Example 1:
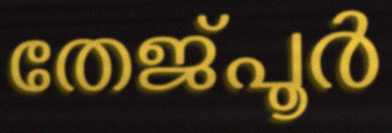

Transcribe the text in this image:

തേജ്പൂർ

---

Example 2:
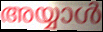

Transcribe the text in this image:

അയ്യാൾ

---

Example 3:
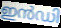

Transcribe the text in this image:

ഇൻഡി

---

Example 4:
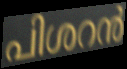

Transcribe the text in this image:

പിശറൻ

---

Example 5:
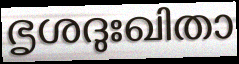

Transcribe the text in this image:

ഭൃശദുഃഖിതാ